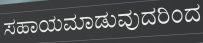
ಸಹಾಯಮಾಡುವುದರಿಂದ